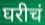
घरीचं